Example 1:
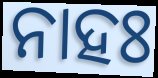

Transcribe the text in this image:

ନାହଃ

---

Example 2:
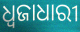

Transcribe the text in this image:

ଧ୍ବଜାଧାରୀ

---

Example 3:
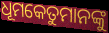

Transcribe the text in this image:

ଧୂମକେତୁମାନଙ୍କୁ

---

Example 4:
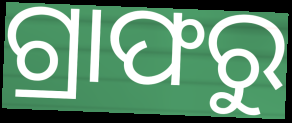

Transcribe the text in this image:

ଗ୍ରାଫରୁ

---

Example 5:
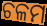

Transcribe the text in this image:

ଚଳମ